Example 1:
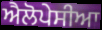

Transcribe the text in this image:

ਐਲੋਪੇਸੀਆ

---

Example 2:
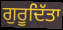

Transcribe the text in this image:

ਗੁਰੂਦਿੱਤਾ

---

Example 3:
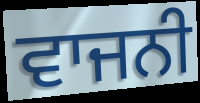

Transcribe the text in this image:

ਵਾਜਨੀ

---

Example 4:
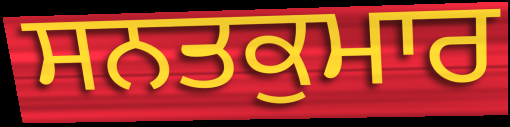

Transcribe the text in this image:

ਸਨਤਕੁਮਾਰ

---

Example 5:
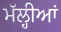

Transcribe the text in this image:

ਮੱਲ੍ਹੀਆਂ